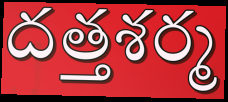
దత్తశర్మ